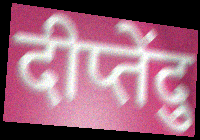
दीप्तेंदु